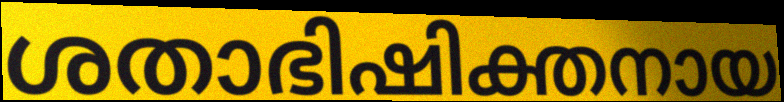
ശതാഭിഷിക്തനായ